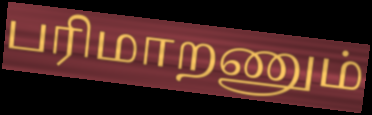
பரிமாறணும்